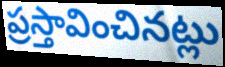
ప్రస్తావించినట్లు